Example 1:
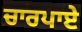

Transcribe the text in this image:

ਚਾਰਪਾਏ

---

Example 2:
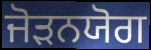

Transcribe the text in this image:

ਜੋੜਨਯੋਗ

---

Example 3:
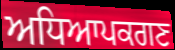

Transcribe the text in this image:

ਅਧਿਆਪਕਗਣ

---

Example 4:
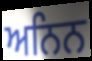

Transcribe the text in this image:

ਅਨਿਨ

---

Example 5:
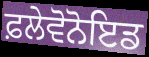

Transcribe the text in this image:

ਫ਼ਲੇਵੋਨੋਇਡ